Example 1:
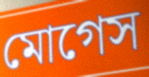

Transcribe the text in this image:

মোগেস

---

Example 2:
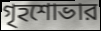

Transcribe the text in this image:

গৃহশোভার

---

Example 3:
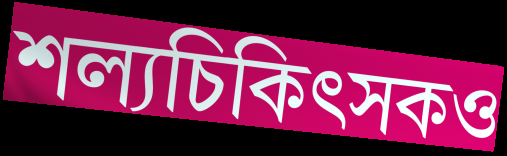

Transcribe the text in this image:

শল্যচিকিৎসকও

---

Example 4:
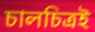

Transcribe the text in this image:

চালচিত্রই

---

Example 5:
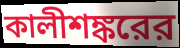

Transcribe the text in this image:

কালীশঙ্করের